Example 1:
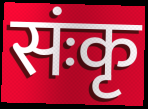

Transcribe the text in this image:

संःकृ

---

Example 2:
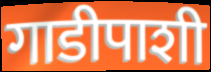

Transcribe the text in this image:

गाडीपाशी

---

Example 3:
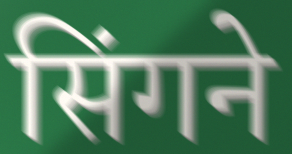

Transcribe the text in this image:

सिंगने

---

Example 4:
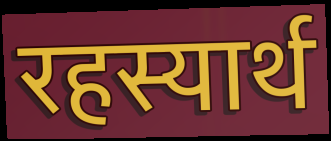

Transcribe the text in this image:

रहस्यार्थ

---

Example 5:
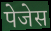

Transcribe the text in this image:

पेजेस